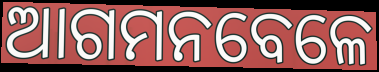
ଆଗମନବେଳେ